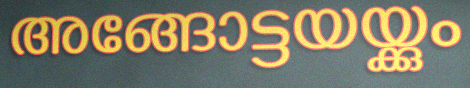
അങ്ങോട്ടയയ്ക്കും